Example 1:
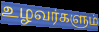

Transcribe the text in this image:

உழவர்களும்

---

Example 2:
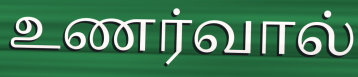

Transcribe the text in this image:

உணர்வால்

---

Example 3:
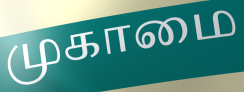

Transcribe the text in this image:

முகாமை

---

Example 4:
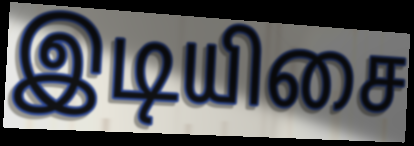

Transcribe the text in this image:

இடியிசை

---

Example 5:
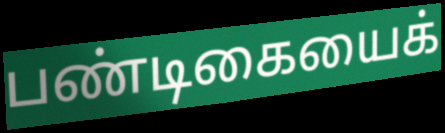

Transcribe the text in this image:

பண்டிகையைக்